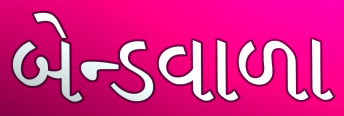
બેન્ડવાળા